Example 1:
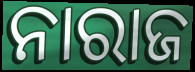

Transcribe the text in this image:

ନାରାଜ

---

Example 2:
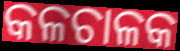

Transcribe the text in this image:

କଳଚାଳକ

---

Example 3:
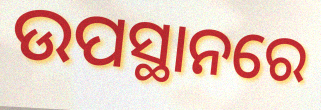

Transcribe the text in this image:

ଉପସ୍ଥାନରେ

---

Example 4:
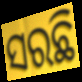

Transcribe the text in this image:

ସରଛି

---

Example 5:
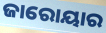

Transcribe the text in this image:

ଜାରୋୟାର